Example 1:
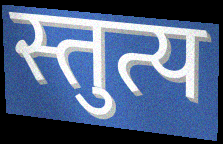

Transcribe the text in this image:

स्तुत्य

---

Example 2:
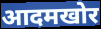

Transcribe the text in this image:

आदमखोर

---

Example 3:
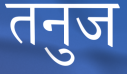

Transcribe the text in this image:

तनुज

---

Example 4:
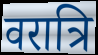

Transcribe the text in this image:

वरात्रि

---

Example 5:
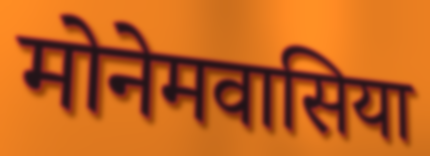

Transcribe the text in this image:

मोनेमवासिया